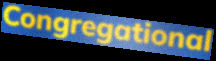
Congregational